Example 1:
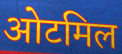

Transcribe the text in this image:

ओटमिल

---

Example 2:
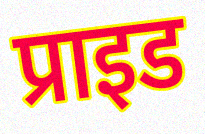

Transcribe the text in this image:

प्राइड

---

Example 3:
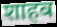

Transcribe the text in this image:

शाहब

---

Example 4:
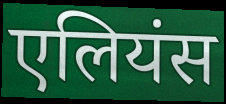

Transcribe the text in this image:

एलियंस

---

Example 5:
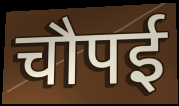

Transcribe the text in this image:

चौपई